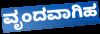
ವೃಂದವಾಗಿಹ